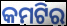
କମଟିର